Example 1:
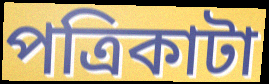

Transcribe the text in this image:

পত্রিকাটা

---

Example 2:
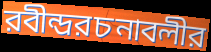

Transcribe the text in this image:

রবীন্দ্ররচনাবলীর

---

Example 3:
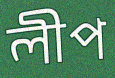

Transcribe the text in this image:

লীপ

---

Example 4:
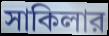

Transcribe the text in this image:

সাকিলার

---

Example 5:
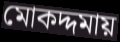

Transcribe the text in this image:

মোকদ্দমায়